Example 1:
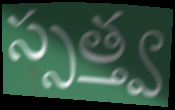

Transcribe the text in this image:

స్సత్త్వ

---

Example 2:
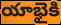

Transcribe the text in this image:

యాభైకి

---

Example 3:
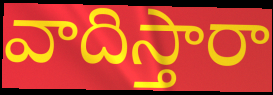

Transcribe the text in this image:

వాదిస్తారా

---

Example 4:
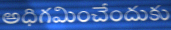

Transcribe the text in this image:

అధిగమించేందుకు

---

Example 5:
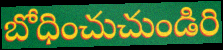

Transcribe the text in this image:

బోధించుచుండిరి